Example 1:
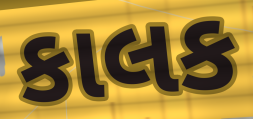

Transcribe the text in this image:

કાલક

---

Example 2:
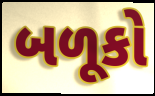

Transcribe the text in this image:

બળૂકો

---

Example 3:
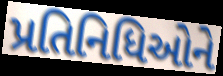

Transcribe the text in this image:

પ્રતિનિધિઓને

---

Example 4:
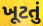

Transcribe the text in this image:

ખૂટતું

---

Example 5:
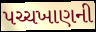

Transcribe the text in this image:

પચ્ચખાણની